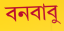
বনবাবু